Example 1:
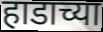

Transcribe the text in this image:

हाडाच्या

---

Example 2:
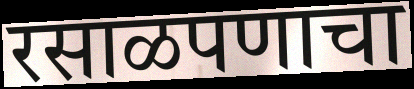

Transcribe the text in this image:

रसाळपणाचा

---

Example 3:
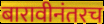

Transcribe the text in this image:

बारावीनंतरच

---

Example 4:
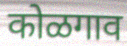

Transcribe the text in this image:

कोळगाव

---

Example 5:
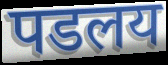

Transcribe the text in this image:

पडलय